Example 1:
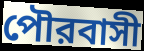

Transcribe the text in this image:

পৌরবাসী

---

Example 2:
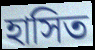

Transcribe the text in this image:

হাসিত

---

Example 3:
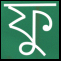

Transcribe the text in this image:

ফু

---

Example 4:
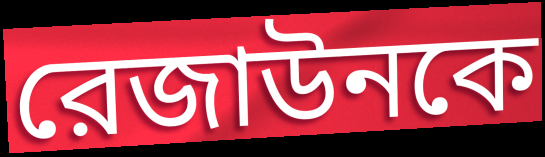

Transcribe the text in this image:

রেজাউনকে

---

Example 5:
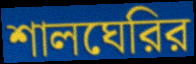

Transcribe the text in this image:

শালঘেরির